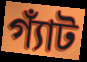
গ্যাঁট